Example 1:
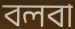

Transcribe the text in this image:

বলবা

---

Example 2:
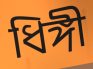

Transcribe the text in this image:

ধিঙ্গী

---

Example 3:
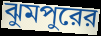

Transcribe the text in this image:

ঝুমপুরের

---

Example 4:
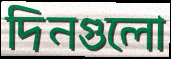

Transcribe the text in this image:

দিনগুলো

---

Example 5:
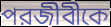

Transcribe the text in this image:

পরজীবীকে